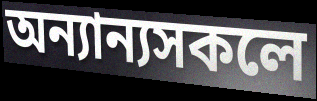
অন্যান্যসকলে